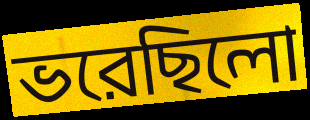
ভরেছিলো